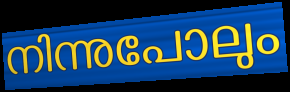
നിന്നുപോലും